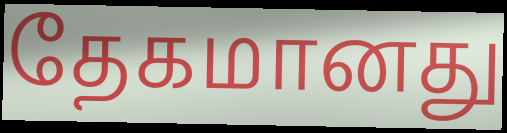
தேகமானது